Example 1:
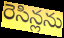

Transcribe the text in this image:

రెసిన్లను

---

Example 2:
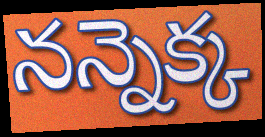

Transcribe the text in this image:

నన్నెక్క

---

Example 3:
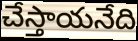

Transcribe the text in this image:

చేస్తాయనేది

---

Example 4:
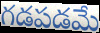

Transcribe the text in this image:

గడపడమే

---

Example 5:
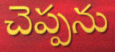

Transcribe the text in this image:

చెప్పను